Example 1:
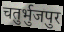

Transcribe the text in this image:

चतुर्भुजपुर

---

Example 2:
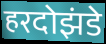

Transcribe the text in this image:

हरदोझंडे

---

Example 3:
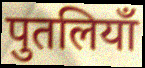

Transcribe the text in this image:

पुतलियाँ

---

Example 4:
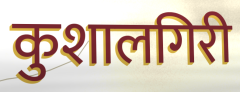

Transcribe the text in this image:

कुशालगिरी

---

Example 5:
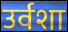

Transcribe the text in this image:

उर्वशा